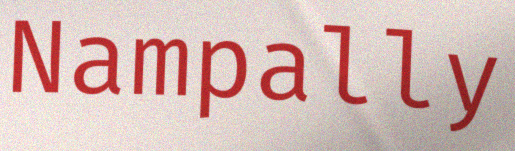
Nampally